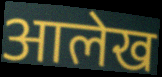
आलेख